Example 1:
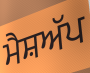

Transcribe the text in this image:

ਮੈਸ਼ਅੱਪ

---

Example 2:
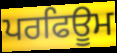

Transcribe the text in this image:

ਪਰਫਿਊਮ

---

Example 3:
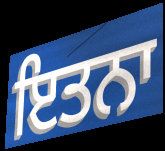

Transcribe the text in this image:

ਇਤਨਾ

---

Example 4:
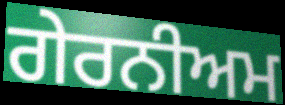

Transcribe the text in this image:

ਗੇਰਨੀਅਮ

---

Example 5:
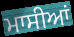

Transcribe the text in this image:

ਮਾਸੀਆਂ